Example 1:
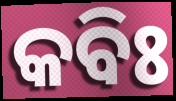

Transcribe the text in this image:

କବିଃ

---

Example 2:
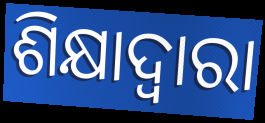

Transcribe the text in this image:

ଶିକ୍ଷାଦ୍ୱାରା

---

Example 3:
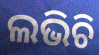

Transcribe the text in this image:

ଲଭିଚି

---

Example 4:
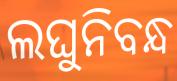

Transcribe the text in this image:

ଲଘୁନିବନ୍ଧ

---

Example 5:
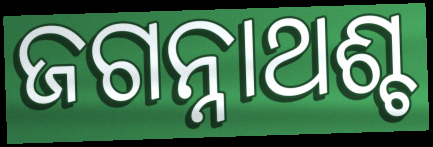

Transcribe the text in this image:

ଜଗନ୍ନାଥଶ୍ଚ